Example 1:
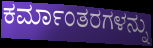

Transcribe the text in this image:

ಕರ್ಮಾಂತರಗಳನ್ನು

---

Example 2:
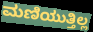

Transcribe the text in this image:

ಮಣಿಯುತ್ತಿಲ್ಲ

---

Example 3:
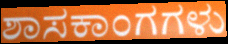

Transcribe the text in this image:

ಶಾಸಕಾಂಗಗಳು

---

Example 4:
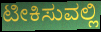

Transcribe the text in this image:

ಟೀಕಿಸುವಲ್ಲಿ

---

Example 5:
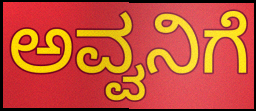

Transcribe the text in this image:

ಅವ್ವನಿಗೆ